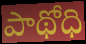
పాథోధి